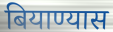
बियाण्यास